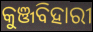
କୁଞ୍ଜବିହାରୀ